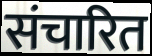
संचारित